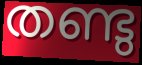
തണ്ടു